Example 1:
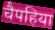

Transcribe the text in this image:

चैपहिया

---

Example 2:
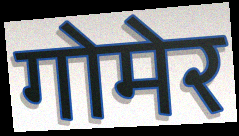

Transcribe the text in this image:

गोमेर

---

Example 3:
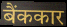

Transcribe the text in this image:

बैंककार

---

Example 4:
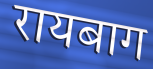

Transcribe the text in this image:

रायबाग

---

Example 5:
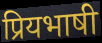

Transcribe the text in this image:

प्रियभाषी